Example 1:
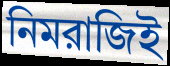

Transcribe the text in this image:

নিমরাজিই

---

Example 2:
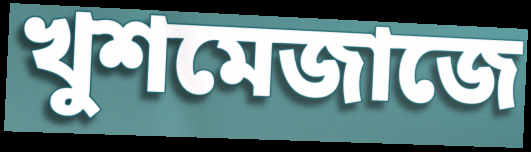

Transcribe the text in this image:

খুশমেজাজে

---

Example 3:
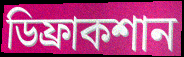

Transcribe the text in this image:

ডিফ্রাকশান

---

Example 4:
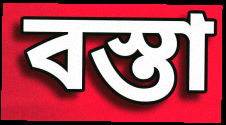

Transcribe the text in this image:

বস্তা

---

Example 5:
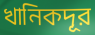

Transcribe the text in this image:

খানিকদূর